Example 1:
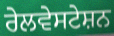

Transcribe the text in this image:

ਰੇਲਵੇਸਟੇਸ਼ਨ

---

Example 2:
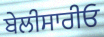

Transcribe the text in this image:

ਬੇਲੀਸਾਰੀਓ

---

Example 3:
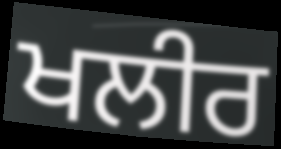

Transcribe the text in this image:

ਖਲੀਰ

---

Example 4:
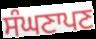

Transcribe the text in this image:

ਸੰਘਣਾਪਣ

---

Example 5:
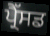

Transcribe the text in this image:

ਪ੍ਰੈੱਸਡ